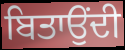
ਬਿਤਾਉਂਦੀ